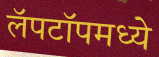
लॅपटॉपमध्ये